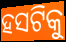
ହସଟିକୁ